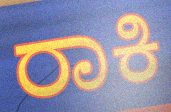
ರಾಕಿ